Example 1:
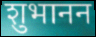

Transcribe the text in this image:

शुभानन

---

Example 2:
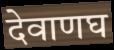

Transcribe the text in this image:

देवाणघ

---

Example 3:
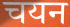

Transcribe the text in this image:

चयन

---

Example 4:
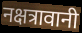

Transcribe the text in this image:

नक्षत्रावानी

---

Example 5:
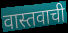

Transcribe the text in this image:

वास्तवाची